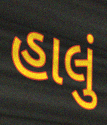
હાલું